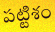
పట్టిశం